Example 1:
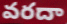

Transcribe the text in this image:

వరదా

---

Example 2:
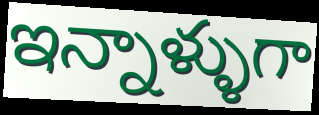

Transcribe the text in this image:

ఇన్నాళ్ళుగా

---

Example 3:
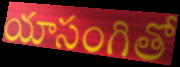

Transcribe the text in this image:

యాసంగితో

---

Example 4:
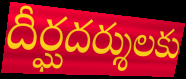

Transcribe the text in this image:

దీర్ఘదర్శులకు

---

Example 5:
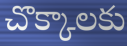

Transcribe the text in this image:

చొక్కాలకు